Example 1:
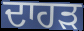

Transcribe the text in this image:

ਦਾਹੜ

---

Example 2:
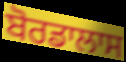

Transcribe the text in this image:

ਬੋਰਡਾਲਾਸ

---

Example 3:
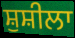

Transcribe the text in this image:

ਸ਼ੁਸ਼ੀਲਾ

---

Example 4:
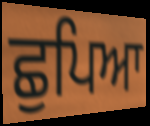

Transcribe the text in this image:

ਛੁਪਿਆ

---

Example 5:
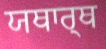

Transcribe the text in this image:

ਯਥਾਰ੍ਥ